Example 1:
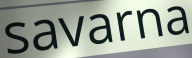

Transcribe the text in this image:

savarna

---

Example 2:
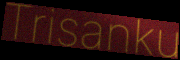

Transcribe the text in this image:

Trisanku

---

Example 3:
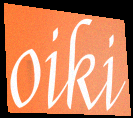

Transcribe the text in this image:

oiki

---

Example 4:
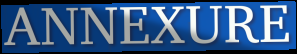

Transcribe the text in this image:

ANNEXURE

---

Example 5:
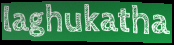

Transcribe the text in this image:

laghukatha